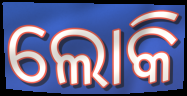
ଲୋକି